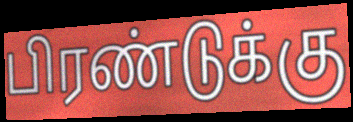
பிரண்டுக்கு